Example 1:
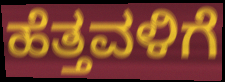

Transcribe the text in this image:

ಹೆತ್ತವಳಿಗೆ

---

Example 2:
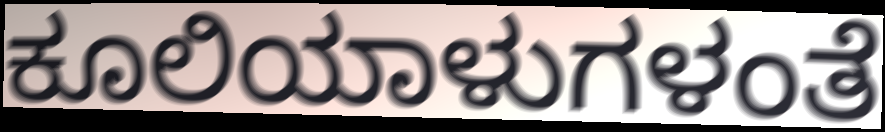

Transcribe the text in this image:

ಕೂಲಿಯಾಳುಗಳಂತೆ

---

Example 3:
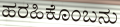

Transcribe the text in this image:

ಹರಹಿಕೊಂಬನು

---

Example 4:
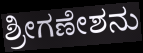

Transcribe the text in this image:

ಶ್ರೀಗಣೇಶನು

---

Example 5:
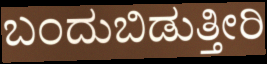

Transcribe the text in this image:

ಬಂದುಬಿಡುತ್ತೀರಿ